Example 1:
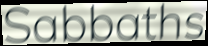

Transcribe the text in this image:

Sabbaths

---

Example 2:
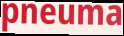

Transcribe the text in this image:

pneuma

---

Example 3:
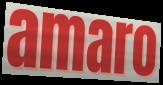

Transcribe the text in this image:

amaro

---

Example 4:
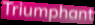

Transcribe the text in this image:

Triumphant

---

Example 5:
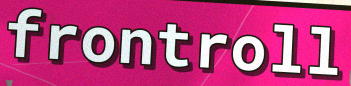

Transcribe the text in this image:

frontroll